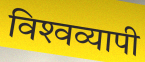
विश्‍वव्यापी